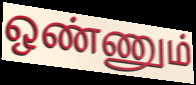
ஒண்ணும்